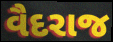
વૈદરાજ